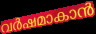
വർഷമാകാൻ